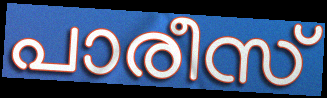
പാരീസ്